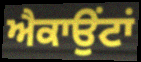
ਐਕਾਉਂਟਾਂ